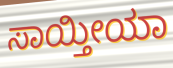
ಸಾಯ್ತೀಯಾ